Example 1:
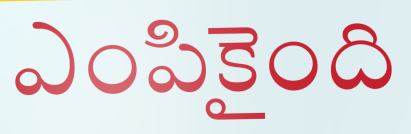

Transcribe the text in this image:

ఎంపికైంది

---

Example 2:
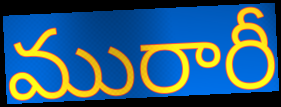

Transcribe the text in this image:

మురారీ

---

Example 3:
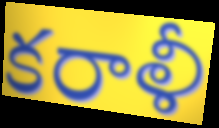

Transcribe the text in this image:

కరాళీ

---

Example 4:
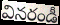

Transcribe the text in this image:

వినరండీ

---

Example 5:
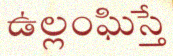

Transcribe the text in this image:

ఉల్లంఘిస్తే